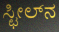
ಸ್ಟೀಲ್‌ನ